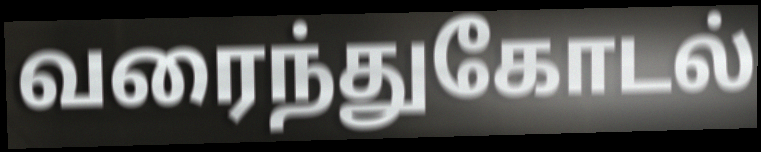
வரைந்துகோடல்